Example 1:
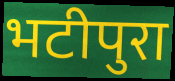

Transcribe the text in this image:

भटीपुरा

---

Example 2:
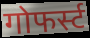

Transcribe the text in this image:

गोफर्स्ट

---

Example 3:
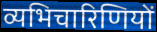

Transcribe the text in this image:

व्यभिचारिणियों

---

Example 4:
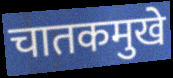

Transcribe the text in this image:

चातकमुखे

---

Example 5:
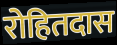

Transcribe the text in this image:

रोहितदास